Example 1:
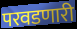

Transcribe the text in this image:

परवडणारी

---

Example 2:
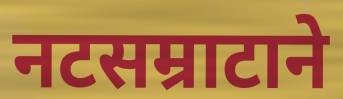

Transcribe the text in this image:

नटसम्राटाने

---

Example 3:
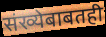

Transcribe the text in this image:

संख्येबाबतही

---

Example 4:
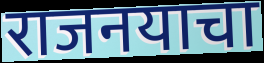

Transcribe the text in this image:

राजनयाचा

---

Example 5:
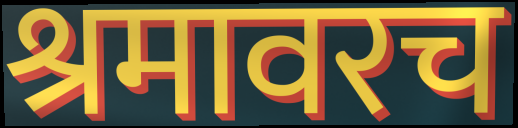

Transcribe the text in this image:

श्रमावरच